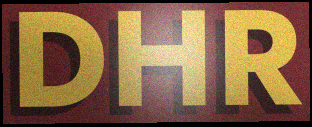
DHR